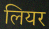
लियर